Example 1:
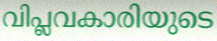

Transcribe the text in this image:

വിപ്ലവകാരിയുടെ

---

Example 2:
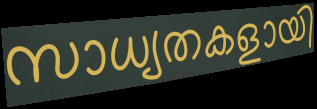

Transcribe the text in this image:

സാധ്യതകളായി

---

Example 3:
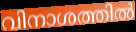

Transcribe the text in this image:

വിനാശത്തിൽ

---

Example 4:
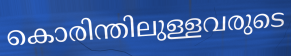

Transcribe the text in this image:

കൊരിന്തിലുള്ളവരുടെ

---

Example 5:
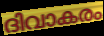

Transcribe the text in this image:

ദിവാകരം